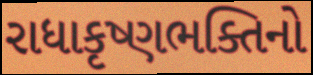
રાધાકૃષ્ણભક્તિનો